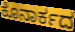
ಕೊನಾರ್ಕದ